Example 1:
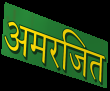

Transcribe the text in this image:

अमरजित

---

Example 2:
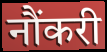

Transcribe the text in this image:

नौंकरी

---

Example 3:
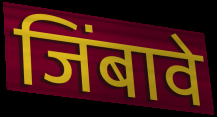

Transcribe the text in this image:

जिंबावे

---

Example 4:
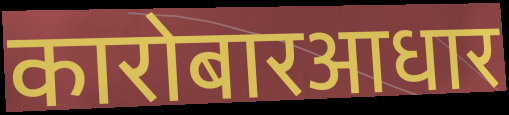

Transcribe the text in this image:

कारोबारआधार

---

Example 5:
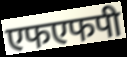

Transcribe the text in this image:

एफएफपी